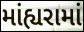
માંહ્યરામાં